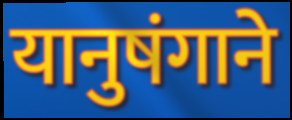
यानुषंगाने